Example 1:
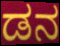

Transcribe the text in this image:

ಡನ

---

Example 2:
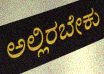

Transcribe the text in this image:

ಅಲ್ಲಿರಬೇಕು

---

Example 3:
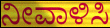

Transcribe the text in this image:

ನೀವಾಳಿಸಿ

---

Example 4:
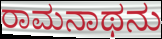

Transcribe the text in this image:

ರಾಮನಾಥನು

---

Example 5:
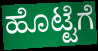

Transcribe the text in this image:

ಹೊಟ್ಟೆಗೆ